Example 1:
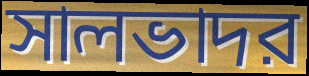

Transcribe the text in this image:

সালভাদর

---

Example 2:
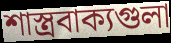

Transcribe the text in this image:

শাস্ত্রবাক্যগুলা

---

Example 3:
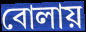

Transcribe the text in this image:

বোলায়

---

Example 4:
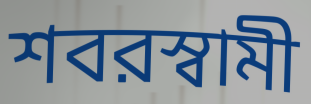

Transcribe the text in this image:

শবরস্বামী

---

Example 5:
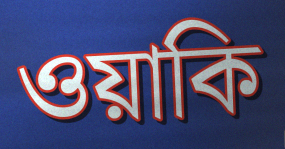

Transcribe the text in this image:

ওয়াকি